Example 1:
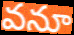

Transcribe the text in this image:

వనూ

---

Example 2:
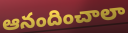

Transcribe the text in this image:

ఆనందించాలా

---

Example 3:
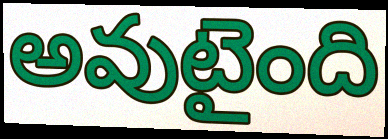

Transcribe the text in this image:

అవుటైంది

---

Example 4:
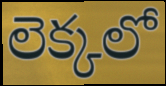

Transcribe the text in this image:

లెక్కలో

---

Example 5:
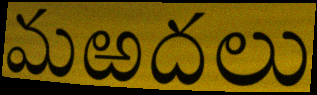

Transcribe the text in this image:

మఱదలు